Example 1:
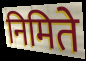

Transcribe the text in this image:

निमिते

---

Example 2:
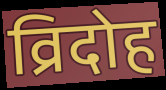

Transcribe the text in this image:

व्रिदोह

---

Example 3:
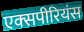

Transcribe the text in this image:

एक्‍सपीरियंस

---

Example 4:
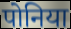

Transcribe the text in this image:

पोनिया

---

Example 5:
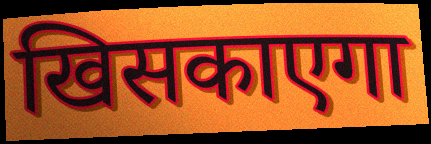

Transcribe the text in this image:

खिसकाएगा